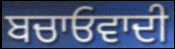
ਬਚਾਓਵਾਦੀ